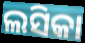
ଲସିକା